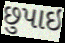
છુપાઇ